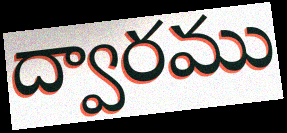
ద్వారము